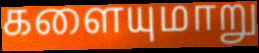
களையுமாறு